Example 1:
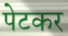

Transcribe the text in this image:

पेटकर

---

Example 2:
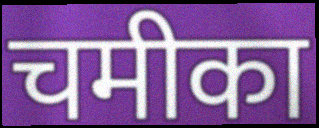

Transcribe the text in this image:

चमीका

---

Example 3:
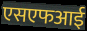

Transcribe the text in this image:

एसएफआई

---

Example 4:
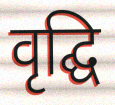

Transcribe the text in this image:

वृद्घि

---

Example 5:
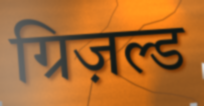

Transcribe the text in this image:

ग्रिज़ल्ड